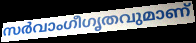
സർവാംഗീഗൃതവുമാണ്